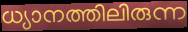
ധ്യാനത്തിലിരുന്ന